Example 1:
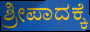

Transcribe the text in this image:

ಶ್ರೀಪಾದಕ್ಕೆ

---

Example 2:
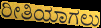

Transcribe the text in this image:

ರೀತಿಯಾಗಲು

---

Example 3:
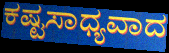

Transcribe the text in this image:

ಕಷ್ಟಸಾಧ್ಯವಾದ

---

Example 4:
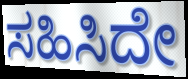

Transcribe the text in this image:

ಸಹಿಸಿದೇ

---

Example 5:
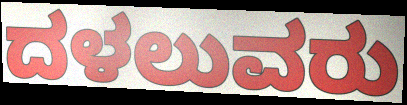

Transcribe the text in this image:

ದಳಲುವರು